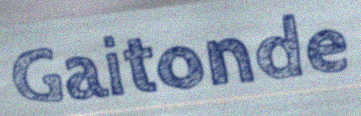
Gaitonde